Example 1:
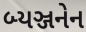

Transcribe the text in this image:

બ્યઞ્જનેન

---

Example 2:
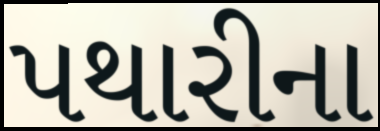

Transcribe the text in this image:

પથારીના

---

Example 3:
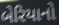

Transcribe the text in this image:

બેરિયાનો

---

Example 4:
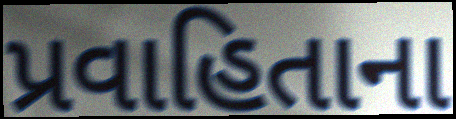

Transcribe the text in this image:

પ્રવાહિતાના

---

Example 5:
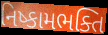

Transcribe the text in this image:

નિષ્કામભક્તિ